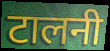
टालनी